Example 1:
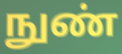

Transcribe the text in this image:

நுண்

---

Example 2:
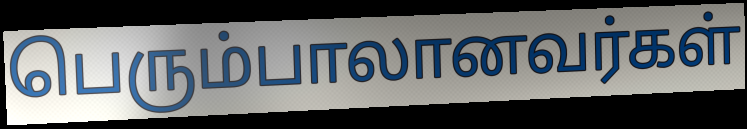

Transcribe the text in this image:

பெரும்பாலானவர்கள்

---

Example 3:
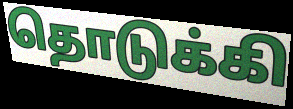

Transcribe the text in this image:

தொடுக்கி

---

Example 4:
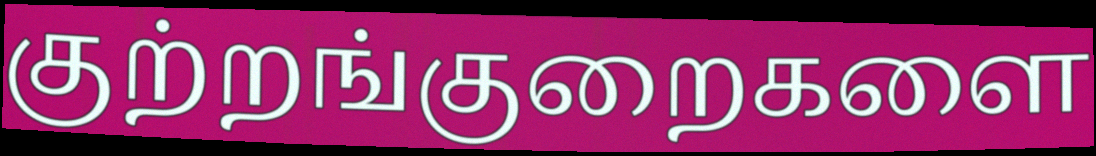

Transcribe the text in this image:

குற்றங்குறைகளை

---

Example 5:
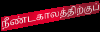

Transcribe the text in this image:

நீண்டகாலத்திற்குப்